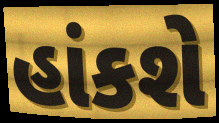
હાંકશે